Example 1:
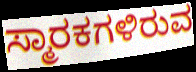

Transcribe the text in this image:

ಸ್ಮಾರಕಗಳಿರುವ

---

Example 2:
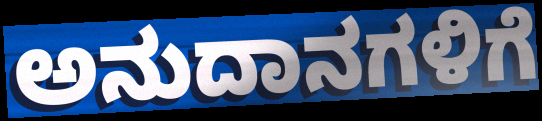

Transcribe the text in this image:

ಅನುದಾನಗಳಿಗೆ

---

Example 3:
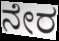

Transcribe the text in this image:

ನೇರ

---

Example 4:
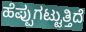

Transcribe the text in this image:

ಹೆಪ್ಪುಗಟ್ಟುತ್ತಿದೆ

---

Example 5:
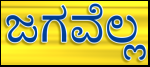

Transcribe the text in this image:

ಜಗವೆಲ್ಲ